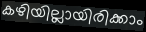
കഴിയില്ലായിരിക്കാം